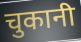
चुकानी